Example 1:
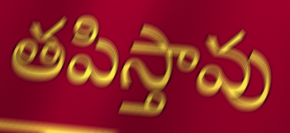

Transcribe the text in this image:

తపిస్తావు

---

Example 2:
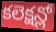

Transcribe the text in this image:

కలెక్షన్లో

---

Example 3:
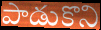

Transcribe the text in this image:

పాడుకొని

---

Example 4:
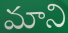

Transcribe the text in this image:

మాని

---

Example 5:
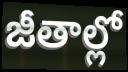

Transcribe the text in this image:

జీతాల్లో